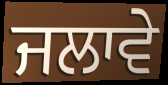
ਜਲਾਵੇ